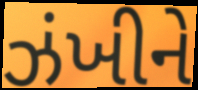
ઝંખીને